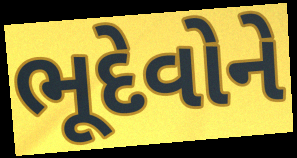
ભૂદેવોને